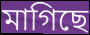
মাগিছে